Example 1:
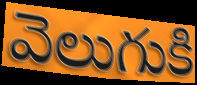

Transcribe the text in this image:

వెలుగుకి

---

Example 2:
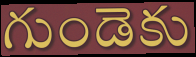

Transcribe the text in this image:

గుండెకు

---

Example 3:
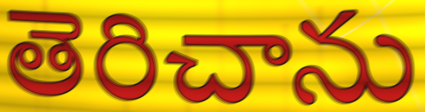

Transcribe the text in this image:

తెరిచాను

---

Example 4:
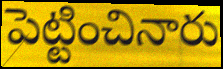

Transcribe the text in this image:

పెట్టించినారు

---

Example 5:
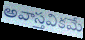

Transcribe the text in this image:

అవాస్తవికమే